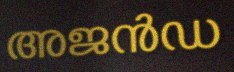
അജൻഡ